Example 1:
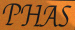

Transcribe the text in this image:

PHAS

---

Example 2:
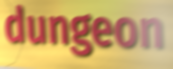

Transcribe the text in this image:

dungeon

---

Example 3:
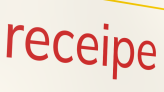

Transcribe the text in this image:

receipe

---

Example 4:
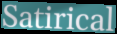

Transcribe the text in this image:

Satirical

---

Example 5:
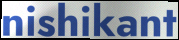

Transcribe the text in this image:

nishikant